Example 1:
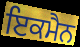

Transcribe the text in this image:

ਇਕਮੈਨ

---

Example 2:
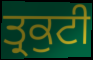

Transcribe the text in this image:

ਤ੍ਰਕੁਟੀ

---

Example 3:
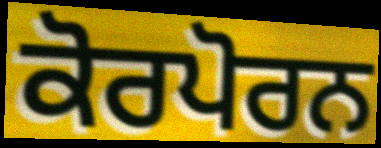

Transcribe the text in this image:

ਕੋਰਪੋਰਨ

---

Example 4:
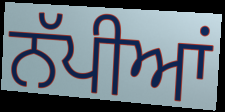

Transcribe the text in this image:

ਨੱਪੀਆਂ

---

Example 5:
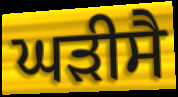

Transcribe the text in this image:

ਘੜੀਸੈ